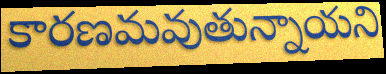
కారణమవుతున్నాయని